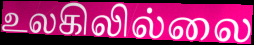
உலகிலில்லை